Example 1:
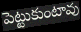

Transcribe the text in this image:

పెట్టుకుంటావు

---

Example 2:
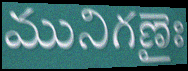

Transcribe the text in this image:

మునిగణైః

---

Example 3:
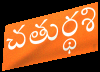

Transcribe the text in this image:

చతుర్థశి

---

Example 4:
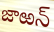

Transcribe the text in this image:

జాఱన్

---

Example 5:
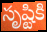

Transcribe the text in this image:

సృష్టికి